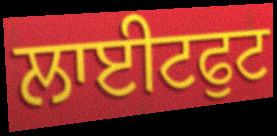
ਲਾਈਟਫੁਟ